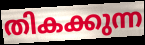
തികക്കുന്ന